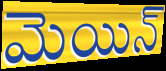
మెయిన్